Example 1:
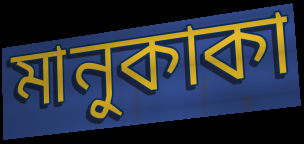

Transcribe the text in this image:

মানুকাকা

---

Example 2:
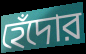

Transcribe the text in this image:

হেঁদোর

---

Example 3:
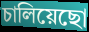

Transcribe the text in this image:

চালিয়েছো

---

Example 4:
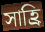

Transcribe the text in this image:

সাহ্রি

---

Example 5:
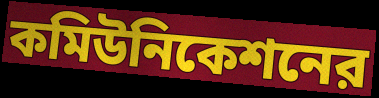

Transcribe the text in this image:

কমিউনিকেশনের